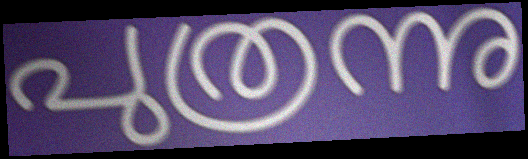
പുത്രന്നു